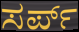
ಸರ್ಪ್